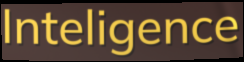
Inteligence